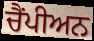
ਚੈਂਪੀਅਨ